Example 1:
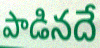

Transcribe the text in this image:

పాడినదే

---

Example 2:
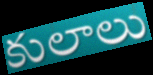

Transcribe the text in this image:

కులాలు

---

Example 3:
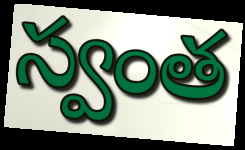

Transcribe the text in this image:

స్వంత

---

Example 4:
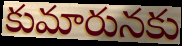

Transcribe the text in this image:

కుమారునకు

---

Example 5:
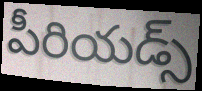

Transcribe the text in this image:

పీరియడ్స్